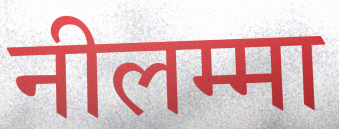
नीलम्मा